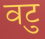
वटु